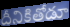
దీనికితోడూ